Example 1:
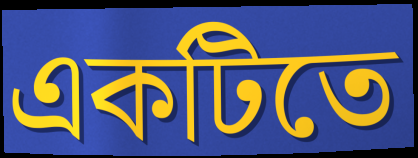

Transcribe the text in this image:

একটিতে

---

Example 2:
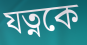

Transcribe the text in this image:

যত্নকে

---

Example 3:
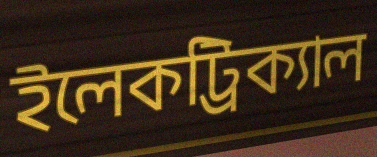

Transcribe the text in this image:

ইলেকট্রিক্যাল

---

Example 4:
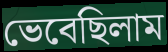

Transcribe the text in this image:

ভেবেছিলাম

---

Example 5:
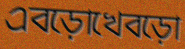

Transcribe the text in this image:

এবড়োখেবড়ো